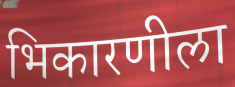
भिकारणीला